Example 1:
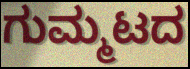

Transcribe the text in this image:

ಗುಮ್ಮಟದ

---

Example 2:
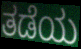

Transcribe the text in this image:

ತಡೆಯ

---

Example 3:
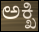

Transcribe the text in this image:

ಅಕ್ಖಿ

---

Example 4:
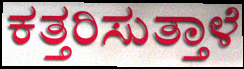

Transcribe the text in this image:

ಕತ್ತರಿಸುತ್ತಾಳೆ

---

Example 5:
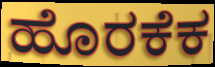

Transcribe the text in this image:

ಹೊರಕೆಕ